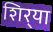
शिर्‍या